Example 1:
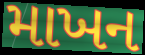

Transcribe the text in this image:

માખન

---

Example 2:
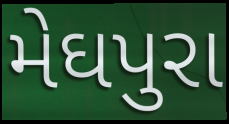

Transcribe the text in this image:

મેઘપુરા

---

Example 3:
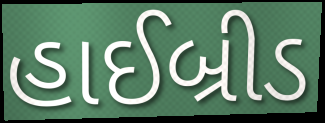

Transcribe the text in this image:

હાઈબ્રીડ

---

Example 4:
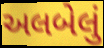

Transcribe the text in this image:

અલબેલું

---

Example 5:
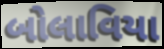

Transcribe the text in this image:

બોલાવિયા